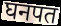
घनपत